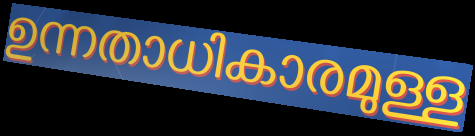
ഉന്നതാധികാരമുള്ള